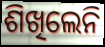
ଶିଖିଲେନି